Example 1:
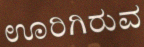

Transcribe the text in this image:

ಊರಿಗಿರುವ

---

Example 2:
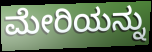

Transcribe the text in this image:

ಮೇರಿಯನ್ನು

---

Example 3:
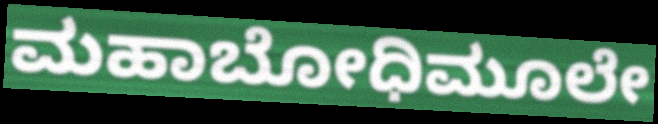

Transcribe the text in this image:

ಮಹಾಬೋಧಿಮೂಲೇ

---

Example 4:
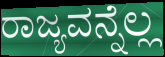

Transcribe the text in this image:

ರಾಜ್ಯವನ್ನೆಲ್ಲ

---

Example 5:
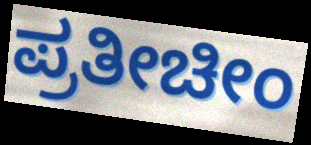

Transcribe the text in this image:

ಪ್ರತೀಚೀಂ